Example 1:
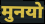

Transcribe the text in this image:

मुनयो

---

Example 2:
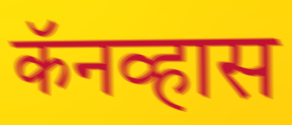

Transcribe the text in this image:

कॅनव्हास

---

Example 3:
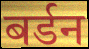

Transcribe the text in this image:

बर्डन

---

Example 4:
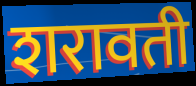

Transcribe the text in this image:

शरावती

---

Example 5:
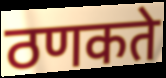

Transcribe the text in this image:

ठणकते